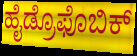
ಹೈಡ್ರೊಫೊಬಿಕ್